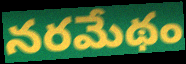
నరమేథం